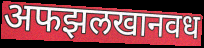
अफझलखानवध